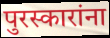
पुरस्कारांना